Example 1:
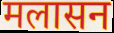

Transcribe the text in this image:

मलासन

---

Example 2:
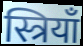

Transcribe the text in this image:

स्त्रियाँ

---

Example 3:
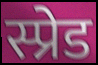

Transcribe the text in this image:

स्‍प्रेड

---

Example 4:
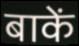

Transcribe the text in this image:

बाकें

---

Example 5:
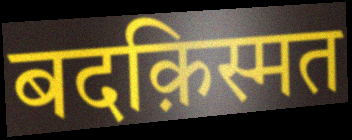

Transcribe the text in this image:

बदक़िस्मत